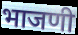
भाजणी